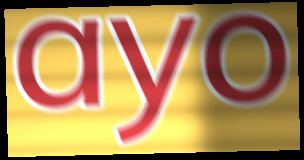
ayo